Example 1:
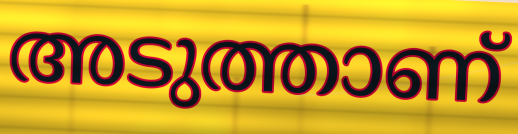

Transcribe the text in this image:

അടുത്താണ്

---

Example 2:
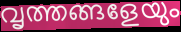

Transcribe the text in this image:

വൃത്തങ്ങളേയും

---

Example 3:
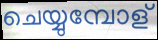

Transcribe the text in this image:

ചെയ്യുമ്പോള്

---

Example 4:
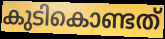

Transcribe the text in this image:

കുടികൊണ്ടത്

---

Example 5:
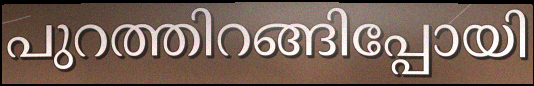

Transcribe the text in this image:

പുറത്തിറങ്ങിപ്പോയി